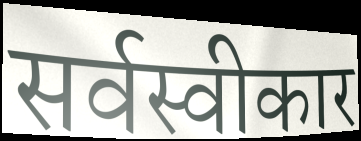
सर्वस्वीकार